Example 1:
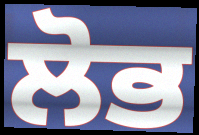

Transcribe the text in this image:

ਲੋਭ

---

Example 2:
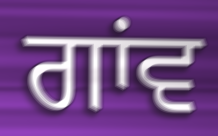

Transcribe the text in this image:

ਗਾਂਵ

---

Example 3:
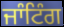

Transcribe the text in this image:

ਜਾੰਟਿੰਗ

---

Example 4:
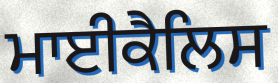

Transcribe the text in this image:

ਮਾਈਕੈਲਿਸ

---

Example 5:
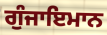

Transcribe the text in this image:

ਗੁੰਜਾਇਮਾਨ